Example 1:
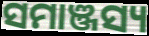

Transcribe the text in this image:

ସମାଞ୍ଜସ୍ୟ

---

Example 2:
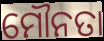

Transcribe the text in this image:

ମୌନତା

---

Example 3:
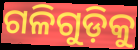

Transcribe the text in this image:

ଗଳିଗୁଡ଼ିକୁ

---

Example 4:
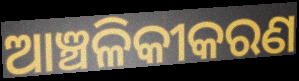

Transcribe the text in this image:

ଆଞ୍ଚଳିକୀକରଣ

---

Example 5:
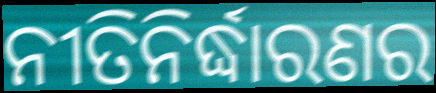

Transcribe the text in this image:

ନୀତିନିର୍ଦ୍ଧାରଣର